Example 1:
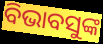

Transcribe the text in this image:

ବିଭାବସୁଙ୍କ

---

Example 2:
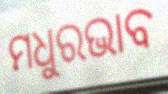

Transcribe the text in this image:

ମଧୁରଭାବ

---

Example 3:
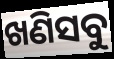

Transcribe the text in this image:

ଖଣିସବୁ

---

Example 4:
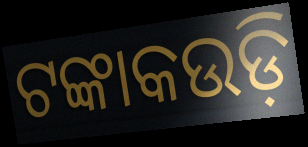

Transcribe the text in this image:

ଟଙ୍କାକଉଡ଼ି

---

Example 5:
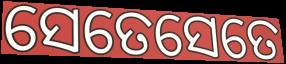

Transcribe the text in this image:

ସେତେସେତେ